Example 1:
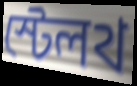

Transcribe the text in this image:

স্টেলথ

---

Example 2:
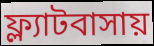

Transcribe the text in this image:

ফ্ল্যাটবাসায়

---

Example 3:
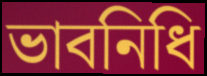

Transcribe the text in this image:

ভাবনিধি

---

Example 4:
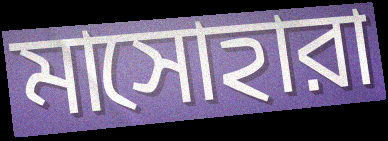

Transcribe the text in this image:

মাসোহারা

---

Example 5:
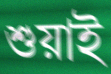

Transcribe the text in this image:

শুয়াই